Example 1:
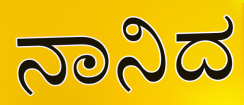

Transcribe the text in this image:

ನಾನಿದ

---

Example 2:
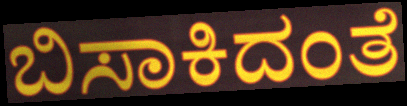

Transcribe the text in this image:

ಬಿಸಾಕಿದಂತೆ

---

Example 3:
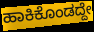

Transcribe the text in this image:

ಹಾಕಿಕೊಂಡದ್ದೇ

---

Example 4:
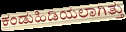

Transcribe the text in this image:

ಕಂಡುಹಿಡಿಯಲಾಗಿತ್ತು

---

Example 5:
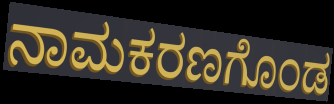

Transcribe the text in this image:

ನಾಮಕರಣಗೊಂಡ